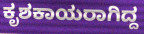
ಕೃಶಕಾಯರಾಗಿದ್ದ